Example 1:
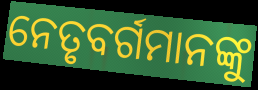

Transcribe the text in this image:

ନେତୃବର୍ଗମାନଙ୍କୁ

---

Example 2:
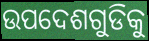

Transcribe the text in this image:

ଉପଦେଶଗୁଡିକୁ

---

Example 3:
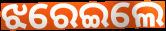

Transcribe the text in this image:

ଝରେଇଲେ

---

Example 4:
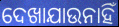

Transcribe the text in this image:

ଦେଖାଯାଉନାହିଁ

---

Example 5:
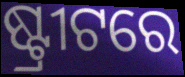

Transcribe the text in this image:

ଷ୍ଟ୍ରୀଟରେ